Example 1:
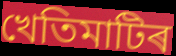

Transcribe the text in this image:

খেতিমাটিৰ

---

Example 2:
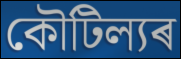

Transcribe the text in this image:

কৌটিল্যৰ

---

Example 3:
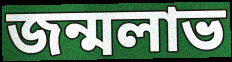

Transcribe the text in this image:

জন্মলাভ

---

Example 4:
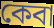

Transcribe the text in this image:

কেবা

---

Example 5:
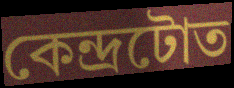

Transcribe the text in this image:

কেন্দ্ৰটোত